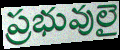
ప్రభువులై